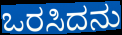
ಒರಸಿದನು